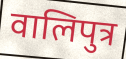
वालिपुत्र